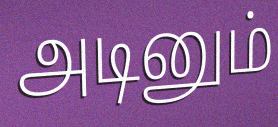
அடினும்